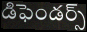
డిఫెండర్స్